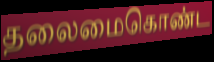
தலைமைகொண்ட